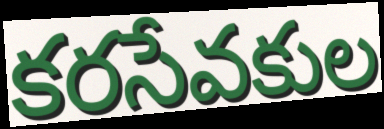
కరసేవకుల